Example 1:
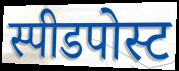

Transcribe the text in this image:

स्पीडपोस्ट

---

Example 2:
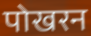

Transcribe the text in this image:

पोखरन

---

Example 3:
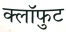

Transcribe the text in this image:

क्लॉफुट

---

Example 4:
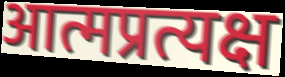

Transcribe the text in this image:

आत्मप्रत्यक्ष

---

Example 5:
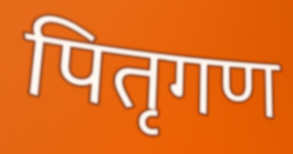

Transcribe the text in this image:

पितृगण